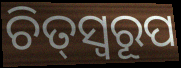
ଚିତ୍‌ସ୍ୱରୂପ